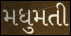
મધુમતી